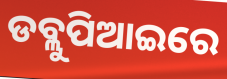
ଡବ୍ଲୁପିଆଇରେ